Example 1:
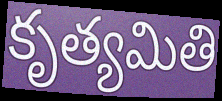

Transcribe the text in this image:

కృత్యమితి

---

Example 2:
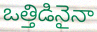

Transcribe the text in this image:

ఒత్తిడినైనా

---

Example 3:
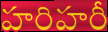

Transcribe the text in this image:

హరిహరీ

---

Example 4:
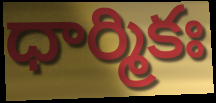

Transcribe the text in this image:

ధార్మికః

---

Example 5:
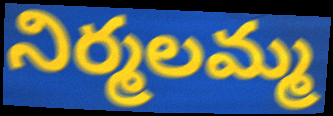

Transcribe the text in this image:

నిర్మలమ్మ